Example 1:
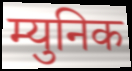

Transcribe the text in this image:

म्युनिक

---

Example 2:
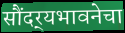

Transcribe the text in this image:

सौंदर्यभावनेचा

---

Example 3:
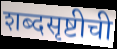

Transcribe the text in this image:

शब्दसृष्टीची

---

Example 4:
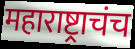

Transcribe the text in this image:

महाराष्ट्राचंच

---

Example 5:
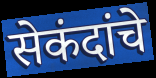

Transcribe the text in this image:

सेकंदांचे